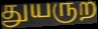
துயருற